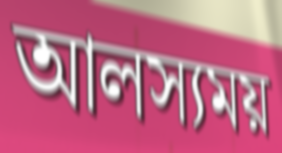
আলস্যময়